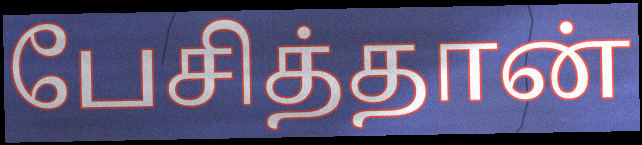
பேசித்தான்